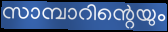
സാമ്പാറിന്റെയും